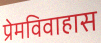
प्रेमविवाहास